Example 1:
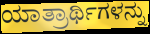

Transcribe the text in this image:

ಯಾತ್ರಾರ್ಥಿಗಳನ್ನು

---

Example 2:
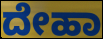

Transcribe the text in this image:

ದೇಹಾ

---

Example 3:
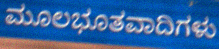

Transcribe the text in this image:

ಮೂಲಭೂತವಾದಿಗಳು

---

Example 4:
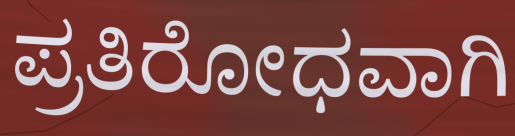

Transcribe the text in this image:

ಪ್ರತಿರೋಧವಾಗಿ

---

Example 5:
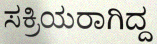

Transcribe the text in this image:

ಸಕ್ರಿಯರಾಗಿದ್ದ